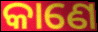
କାଣେ